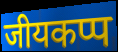
जीयकप्प